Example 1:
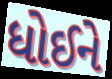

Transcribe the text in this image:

ધોઈને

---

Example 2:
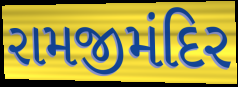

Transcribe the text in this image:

રામજીમંદિર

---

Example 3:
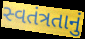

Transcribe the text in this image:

સ્વતંત્રતાનું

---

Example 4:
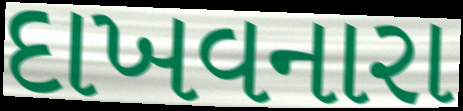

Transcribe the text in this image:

દાખવનારા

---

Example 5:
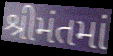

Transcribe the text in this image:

શ્રીમંતમાં